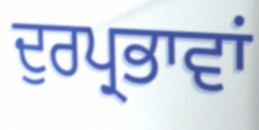
ਦੁਰਪ੍ਰਭਾਵਾਂ